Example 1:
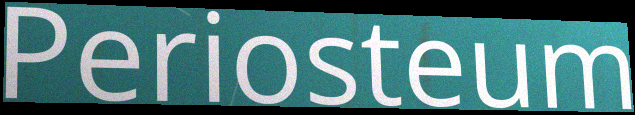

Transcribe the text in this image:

Periosteum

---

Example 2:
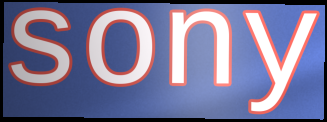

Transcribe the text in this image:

sony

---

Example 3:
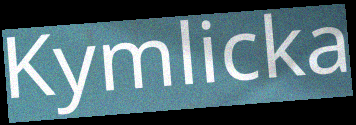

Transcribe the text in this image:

Kymlicka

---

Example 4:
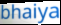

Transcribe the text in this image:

bhaiya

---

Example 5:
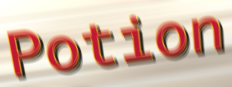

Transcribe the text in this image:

Potion